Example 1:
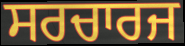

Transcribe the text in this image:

ਸਰਚਾਰਜ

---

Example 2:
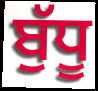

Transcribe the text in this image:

ਬੁੱਧੂ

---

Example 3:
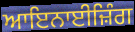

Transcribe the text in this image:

ਆਇਨਾਈਜ਼ਿੰਗ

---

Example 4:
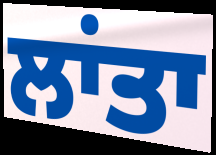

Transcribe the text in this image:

ਲਾਂਤਾ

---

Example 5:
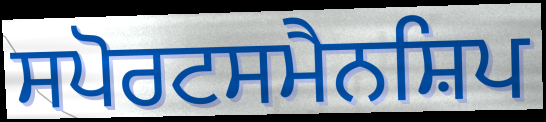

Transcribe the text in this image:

ਸਪੋਰਟਸਮੈਨਸ਼ਿਪ